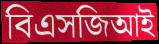
বিএসজিআই